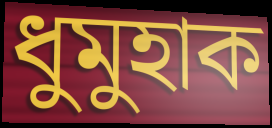
ধুমুহাক